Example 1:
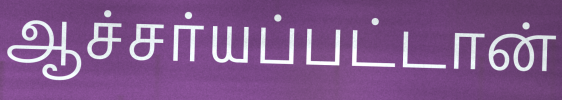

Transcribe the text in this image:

ஆச்சர்யப்பட்டான்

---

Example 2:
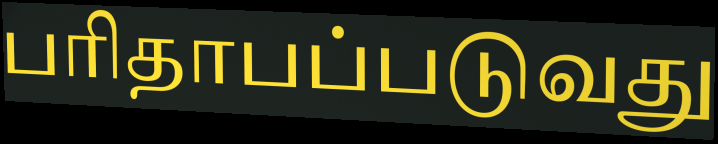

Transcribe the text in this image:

பரிதாபப்படுவது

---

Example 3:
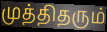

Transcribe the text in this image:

முத்திதரும்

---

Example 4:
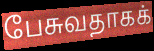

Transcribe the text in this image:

பேசுவதாகக்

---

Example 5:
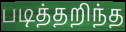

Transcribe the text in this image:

படித்தறிந்த